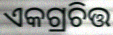
ଏକଗ୍ରଚିତ୍ତ